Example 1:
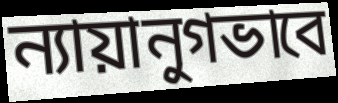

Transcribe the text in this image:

ন্যায়ানুগভাবে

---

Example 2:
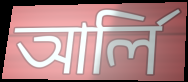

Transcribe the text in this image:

আর্লি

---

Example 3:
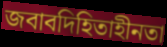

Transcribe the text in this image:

জবাবদিহিতাহীনতা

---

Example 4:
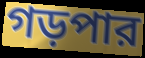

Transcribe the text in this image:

গড়পার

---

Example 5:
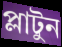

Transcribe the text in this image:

প্লাটুন